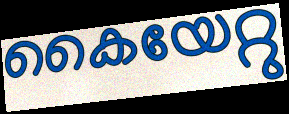
കൈയേറ്റു